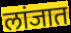
लांजात